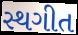
સ્થગીત